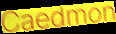
Caedmon